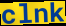
clnk